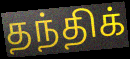
தந்திக்